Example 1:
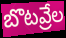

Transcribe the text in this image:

బొటవ్రేల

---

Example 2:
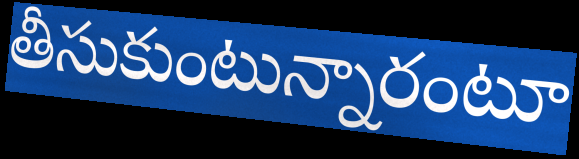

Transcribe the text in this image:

తీసుకుంటున్నారంటూ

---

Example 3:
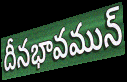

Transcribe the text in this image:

దీనభావమున్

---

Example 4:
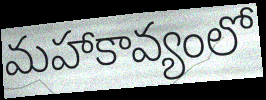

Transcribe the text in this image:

మహాకావ్యంలో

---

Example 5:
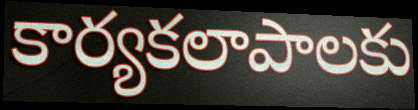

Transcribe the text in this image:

కార్యకలాపాలకు